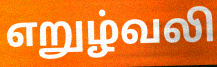
எறுழ்வலி